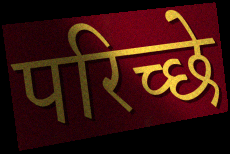
परिच्छे